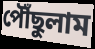
পৌঁছুলাম